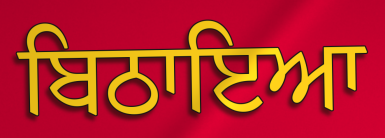
ਬਿਠਾਇਆ